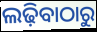
ଲଢ଼ିବାଠାରୁ